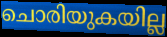
ചൊരിയുകയില്ല